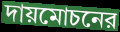
দায়মোচনের